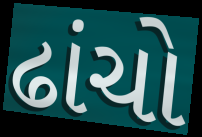
ઢાંચો